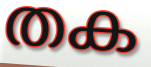
തക